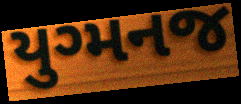
યુગ્મનજ